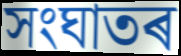
সংঘাতৰ